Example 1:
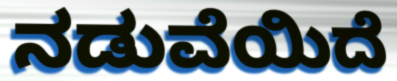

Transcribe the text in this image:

ನಡುವೆಯಿದೆ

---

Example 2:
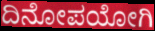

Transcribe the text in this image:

ದಿನೋಪಯೋಗಿ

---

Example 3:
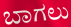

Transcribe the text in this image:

ಬಾಗಲು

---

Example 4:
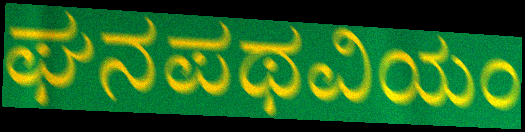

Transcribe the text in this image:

ಘನಪಥವಿಯಂ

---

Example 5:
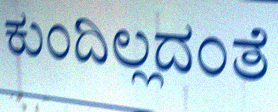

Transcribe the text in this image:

ಕುಂದಿಲ್ಲದಂತೆ